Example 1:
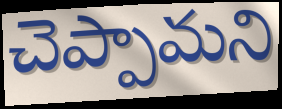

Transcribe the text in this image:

చెప్పామని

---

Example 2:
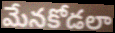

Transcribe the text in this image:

మేనకోడలా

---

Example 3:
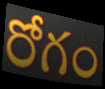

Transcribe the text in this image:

రోగం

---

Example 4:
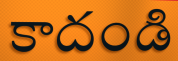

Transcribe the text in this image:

కాదండి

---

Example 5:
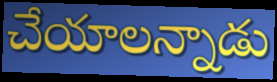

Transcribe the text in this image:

చేయాలన్నాడు